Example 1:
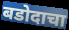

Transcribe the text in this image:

बडोदाचा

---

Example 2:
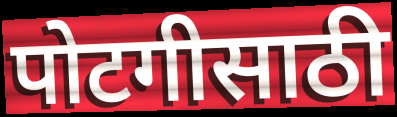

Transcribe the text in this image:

पोटगीसाठी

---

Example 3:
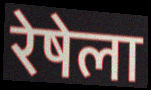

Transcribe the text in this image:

रेषेला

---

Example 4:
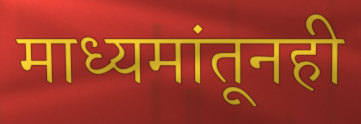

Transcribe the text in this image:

माध्यमांतूनही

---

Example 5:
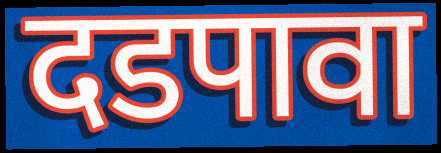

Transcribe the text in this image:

दडपावा